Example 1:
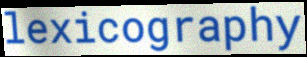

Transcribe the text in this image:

lexicography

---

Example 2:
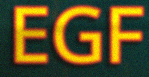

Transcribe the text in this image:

EGF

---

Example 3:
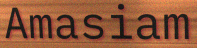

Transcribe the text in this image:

Amasiam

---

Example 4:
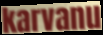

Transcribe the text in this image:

karvanu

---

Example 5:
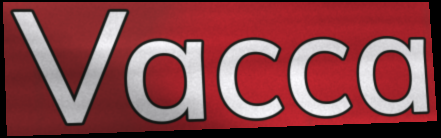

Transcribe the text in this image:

Vacca